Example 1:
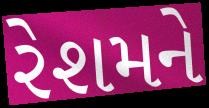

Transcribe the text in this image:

રેશમને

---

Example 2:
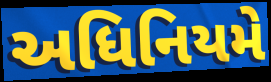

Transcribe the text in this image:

અધિનિયમે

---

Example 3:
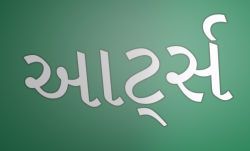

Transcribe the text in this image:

આટ્‌ર્સ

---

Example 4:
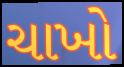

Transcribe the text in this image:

ચાખો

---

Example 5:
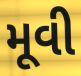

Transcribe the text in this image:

મૂવી